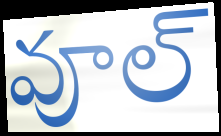
వూల్